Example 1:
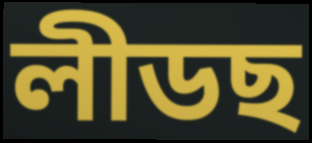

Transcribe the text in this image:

লীডছ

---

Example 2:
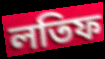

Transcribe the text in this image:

লতিফ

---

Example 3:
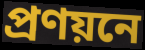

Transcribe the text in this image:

প্ৰণয়নে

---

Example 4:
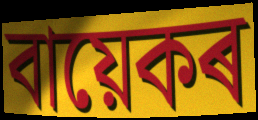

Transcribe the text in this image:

বায়েকৰ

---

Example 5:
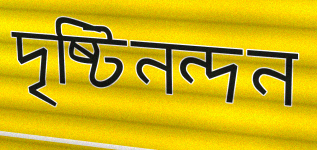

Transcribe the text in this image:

দৃষ্টিনন্দন